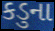
કડુના